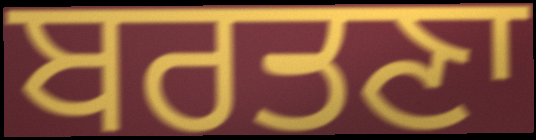
ਬਰਤਣਾ